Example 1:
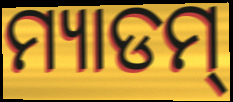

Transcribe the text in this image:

ମ୍ୟାଡମ୍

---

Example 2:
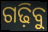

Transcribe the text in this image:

ଗଢ଼ିବୁ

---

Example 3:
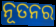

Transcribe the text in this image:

ନୂତନର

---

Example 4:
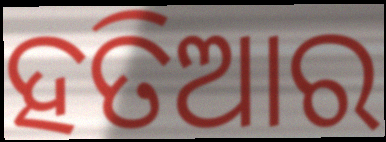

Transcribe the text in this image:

ହତିଆର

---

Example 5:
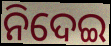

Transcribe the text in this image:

ନିଦେଇ